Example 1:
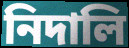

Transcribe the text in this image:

নিদালি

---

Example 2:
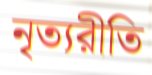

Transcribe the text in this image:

নৃত্যরীতি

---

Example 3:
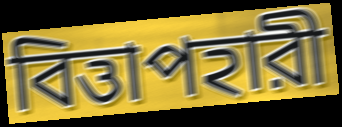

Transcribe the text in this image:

বিত্তাপহারী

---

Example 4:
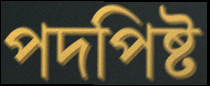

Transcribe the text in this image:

পদপিষ্ট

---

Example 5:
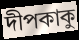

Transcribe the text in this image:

দীপকাকু